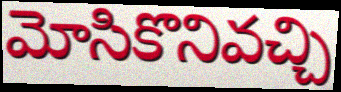
మోసికొనివచ్చి